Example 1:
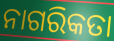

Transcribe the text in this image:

ନାଗରିକତା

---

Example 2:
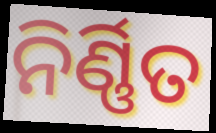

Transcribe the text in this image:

ନିର୍ଣ୍ଣିତ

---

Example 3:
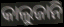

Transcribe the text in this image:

କାଲୁଜାନି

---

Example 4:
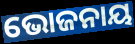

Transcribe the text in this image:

ଭୋଜନାୟ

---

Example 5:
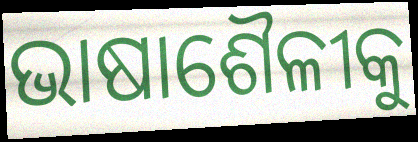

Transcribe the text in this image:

ଭାଷାଶୈଳୀକୁ